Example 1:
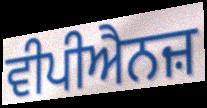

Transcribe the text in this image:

ਵੀਪੀਐਨਜ਼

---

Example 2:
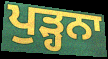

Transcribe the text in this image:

ਪੁੜ੍ਹਨਾ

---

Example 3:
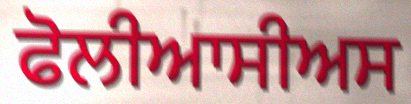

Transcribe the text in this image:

ਫੋਲੀਆਸੀਅਸ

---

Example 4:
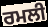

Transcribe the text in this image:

ਰਮਲੀ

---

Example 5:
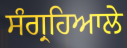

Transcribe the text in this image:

ਸੰਗ੍ਰਹਿਆਲੇ